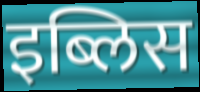
इब्लिस